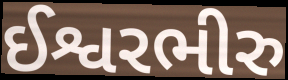
ઈશ્વરભીરુ